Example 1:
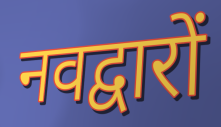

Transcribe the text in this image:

नवद्वारों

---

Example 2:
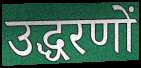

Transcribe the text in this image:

उद्धरणों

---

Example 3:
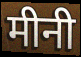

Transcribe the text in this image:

मीनी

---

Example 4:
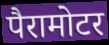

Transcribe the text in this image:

पैरामोटर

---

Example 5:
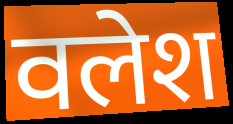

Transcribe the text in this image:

वलेश